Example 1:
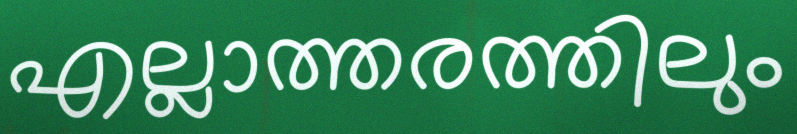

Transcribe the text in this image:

എല്ലാത്തരത്തിലും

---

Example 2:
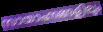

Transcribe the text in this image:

സായാഹ്നങ്ങളിലും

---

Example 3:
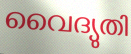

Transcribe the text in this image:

വൈദ്യുതി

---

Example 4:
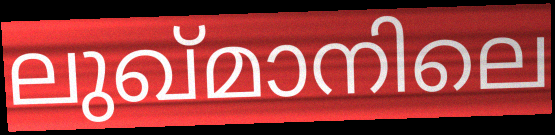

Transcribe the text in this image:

ലുഖ്മാനിലെ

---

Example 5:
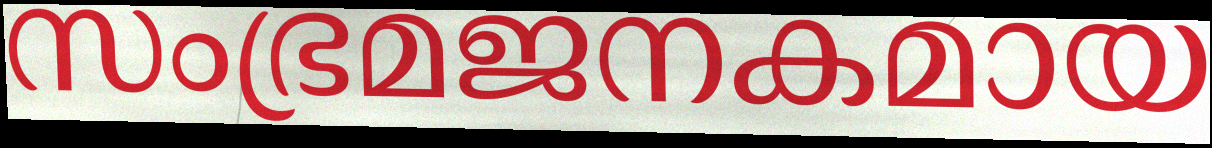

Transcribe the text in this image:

സംഭ്രമജനകമായ